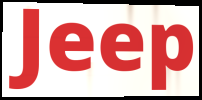
Jeep